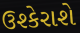
ઉશ્કેરાશે